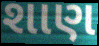
શાણ